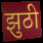
झुठी